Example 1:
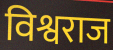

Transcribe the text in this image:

विश्वराज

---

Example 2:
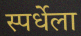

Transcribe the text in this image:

स्पर्धेला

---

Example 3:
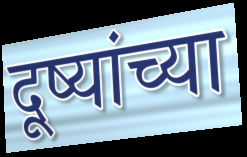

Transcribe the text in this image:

दूष्यांच्या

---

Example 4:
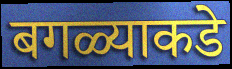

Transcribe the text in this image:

बगळ्याकडे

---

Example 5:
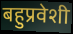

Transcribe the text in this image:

बहुप्रवेशी